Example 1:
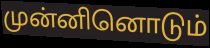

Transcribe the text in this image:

முன்னினொடும்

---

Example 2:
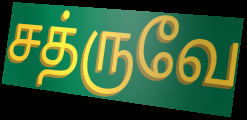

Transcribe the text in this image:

சத்ருவே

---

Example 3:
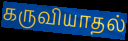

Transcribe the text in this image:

கருவியாதல்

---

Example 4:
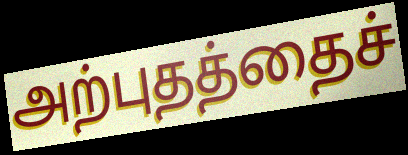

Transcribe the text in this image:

அற்புதத்தைச்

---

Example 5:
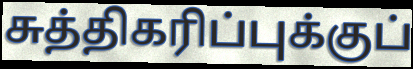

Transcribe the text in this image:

சுத்திகரிப்புக்குப்